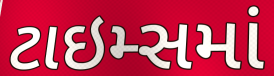
ટાઇમ્સમાં